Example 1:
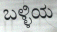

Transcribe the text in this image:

ಬಳ್ಳಿಯ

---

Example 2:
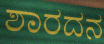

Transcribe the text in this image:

ಶಾರದನ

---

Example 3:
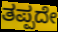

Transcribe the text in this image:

ತಪ್ಪದೇ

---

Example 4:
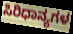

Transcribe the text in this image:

ಸಿರಿಧಾನ್ಯಗಳ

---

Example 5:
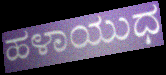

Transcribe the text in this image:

ಹಳಾಯುಧ